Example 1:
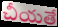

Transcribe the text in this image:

చీయతే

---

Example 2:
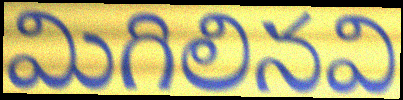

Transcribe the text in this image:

మిగిలినవి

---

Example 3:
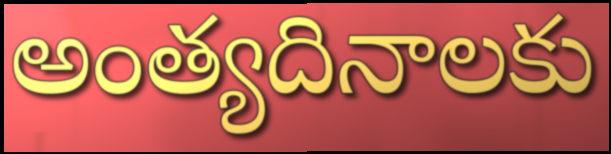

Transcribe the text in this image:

అంత్యదినాలకు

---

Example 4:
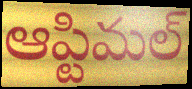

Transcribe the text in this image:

ఆప్టిమల్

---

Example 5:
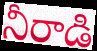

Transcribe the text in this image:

నీరాడి